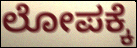
ಲೋಪಕ್ಕೆ